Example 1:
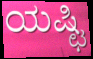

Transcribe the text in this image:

ಯಷ್ಟಿ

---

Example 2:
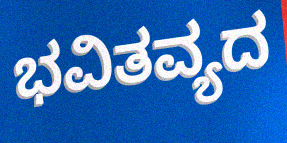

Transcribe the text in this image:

ಭವಿತವ್ಯದ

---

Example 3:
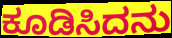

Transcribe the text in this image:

ಕೂಡಿಸಿದನು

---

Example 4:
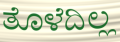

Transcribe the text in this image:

ತೊಳೆದಿಲ್ಲ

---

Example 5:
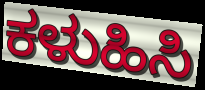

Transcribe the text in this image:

ಕಳುಹಿಸಿ